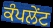
ਕੰਪਲੇਂਟ